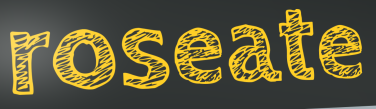
roseate